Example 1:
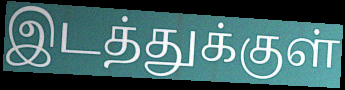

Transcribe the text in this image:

இடத்துக்குள்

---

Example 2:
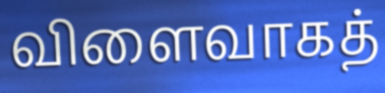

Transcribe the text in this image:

விளைவாகத்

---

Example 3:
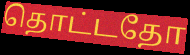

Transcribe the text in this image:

தொட்டதோ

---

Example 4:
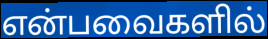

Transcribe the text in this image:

என்பவைகளில்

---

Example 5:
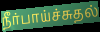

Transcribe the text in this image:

நீர்பாய்ச்சுதல்